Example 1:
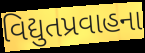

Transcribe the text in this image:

વિદ્યુતપ્રવાહના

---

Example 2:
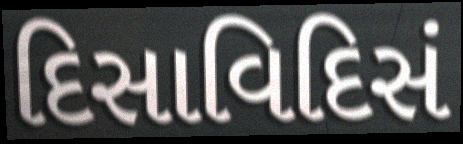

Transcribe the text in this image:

દિસાવિદિસં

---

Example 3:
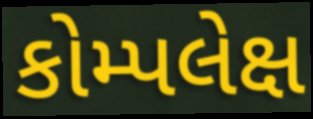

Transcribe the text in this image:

કોમ્પલેક્ષ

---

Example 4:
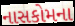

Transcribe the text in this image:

નાસકોમના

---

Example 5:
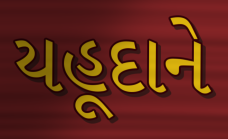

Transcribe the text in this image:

યહૂદાને